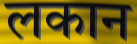
लकान